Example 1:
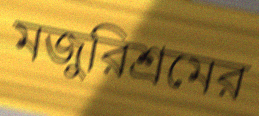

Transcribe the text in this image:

মজুরিশ্রমের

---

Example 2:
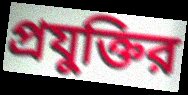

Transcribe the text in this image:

প্রযুক্তির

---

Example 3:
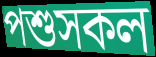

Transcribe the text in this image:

পশুসকল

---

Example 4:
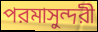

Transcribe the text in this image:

পরমাসুন্দরী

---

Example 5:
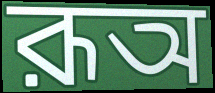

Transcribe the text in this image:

রূঅ